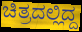
ಚಿತ್ರದಲ್ಲಿದ್ದ